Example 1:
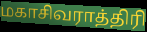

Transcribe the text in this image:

மகாசிவராத்திரி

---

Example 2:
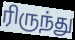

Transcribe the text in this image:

ரிருந்து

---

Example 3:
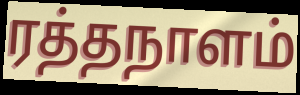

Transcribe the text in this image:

ரத்தநாளம்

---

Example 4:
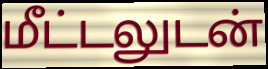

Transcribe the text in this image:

மீட்டலுடன்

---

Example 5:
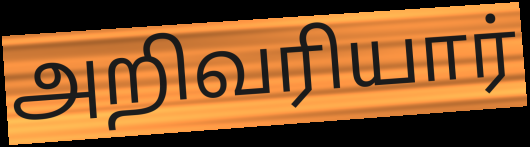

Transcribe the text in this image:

அறிவரியார்